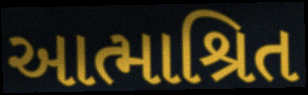
આત્માશ્રિત